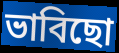
ভাবিছো